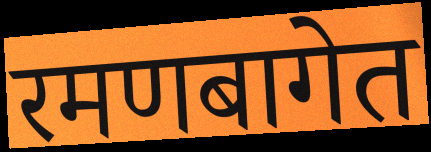
रमणबागेत